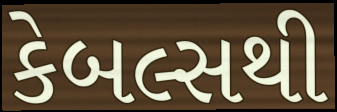
કેબલ્સથી